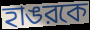
হাঙরকে